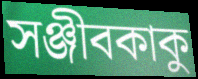
সঞ্জীবকাকু